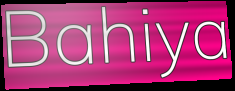
Bahiya